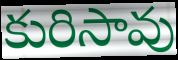
కురిసావు